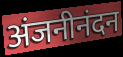
अंजनीनंदन